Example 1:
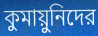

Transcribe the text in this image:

কুমায়ুনিদের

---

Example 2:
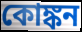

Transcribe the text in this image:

কোঙ্কন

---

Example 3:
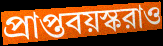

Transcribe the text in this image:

প্রাপ্তবয়স্করাও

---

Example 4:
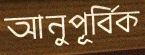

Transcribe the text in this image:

আনুপূর্বিক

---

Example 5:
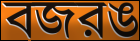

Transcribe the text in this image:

বজরঙ